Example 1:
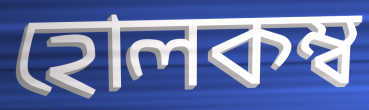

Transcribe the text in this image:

হোলকম্ব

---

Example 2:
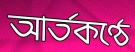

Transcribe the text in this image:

আর্তকণ্ঠে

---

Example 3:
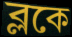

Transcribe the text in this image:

ব্লকে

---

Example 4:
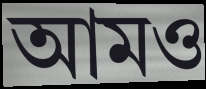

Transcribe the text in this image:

আমও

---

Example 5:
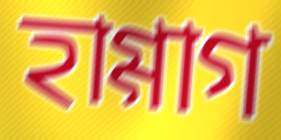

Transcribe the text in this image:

হাগ্গাগ